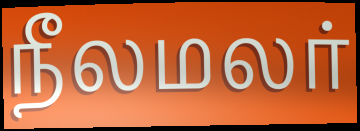
நீலமலர்